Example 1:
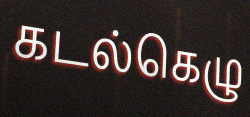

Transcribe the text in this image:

கடல்கெழு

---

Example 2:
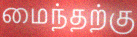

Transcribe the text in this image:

மைந்தற்கு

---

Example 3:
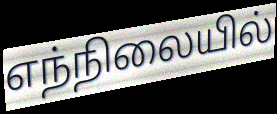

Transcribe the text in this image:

எந்நிலையில்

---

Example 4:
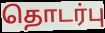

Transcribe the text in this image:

தொடர்பு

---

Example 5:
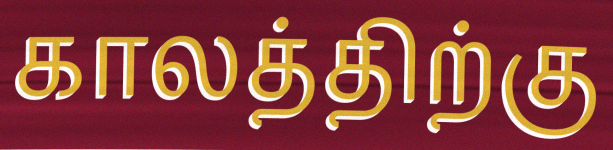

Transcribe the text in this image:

காலத்திற்கு